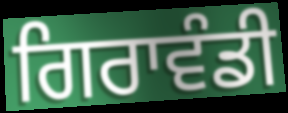
ਗਿਰਾਵੰਡੀ